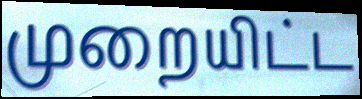
முறையிட்ட